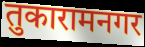
तुकारामनगर